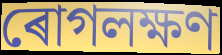
ৰোগলক্ষণ